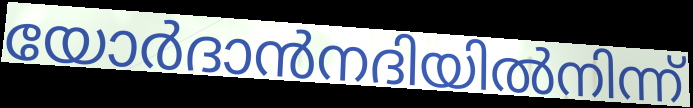
യോർദാൻനദിയിൽനിന്ന്